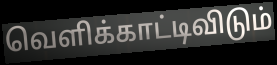
வெளிக்காட்டிவிடும்